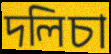
দলিচা